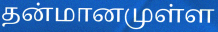
தன்மானமுள்ள